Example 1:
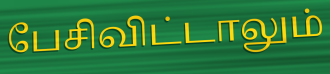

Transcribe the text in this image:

பேசிவிட்டாலும்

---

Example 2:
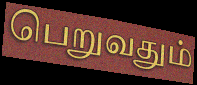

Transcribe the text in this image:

பெறுவதும்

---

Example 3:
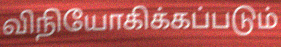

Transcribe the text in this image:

விநியோகிக்கப்படும்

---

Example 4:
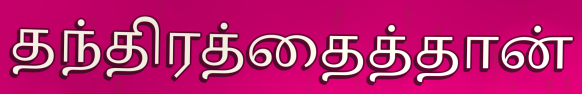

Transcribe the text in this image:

தந்திரத்தைத்தான்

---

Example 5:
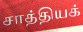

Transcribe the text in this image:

சாத்தியக்